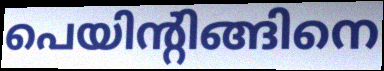
പെയിന്റിങ്ങിനെ